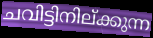
ചവിട്ടിനില്ക്കുന്ന